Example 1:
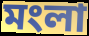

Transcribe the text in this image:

মংলা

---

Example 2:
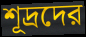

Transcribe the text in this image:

শূদ্রদের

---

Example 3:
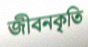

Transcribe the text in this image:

জীবনকৃতি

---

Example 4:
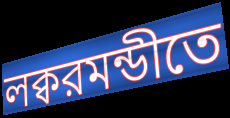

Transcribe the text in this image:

লক্বরমন্ডীতে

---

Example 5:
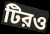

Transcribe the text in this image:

টিরও